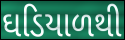
ઘડિયાળથી